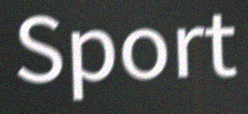
Sport